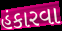
હંકારવા